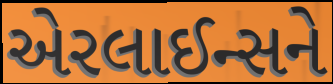
એરલાઈન્સને